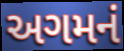
અગમનં